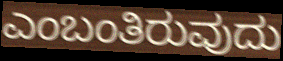
ಎಂಬಂತಿರುವುದು